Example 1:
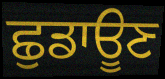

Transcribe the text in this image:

ਛੁਡਾਊਣ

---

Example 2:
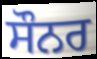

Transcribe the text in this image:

ਸੌਨਰ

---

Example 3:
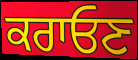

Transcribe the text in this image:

ਕਰਾਓਣ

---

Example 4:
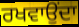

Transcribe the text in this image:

ਰਖਵਾਉਂਦਾ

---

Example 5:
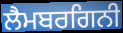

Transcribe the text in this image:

ਲੈਮਬਰਗਿਨੀ